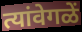
त्यांवेगळें